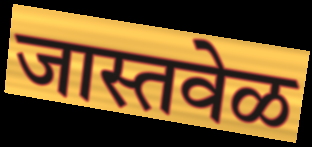
जास्तवेळ